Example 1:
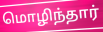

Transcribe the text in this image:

மொழிந்தார்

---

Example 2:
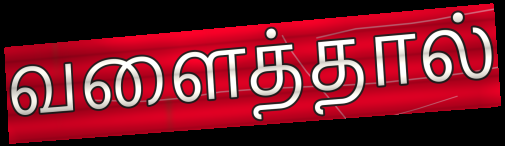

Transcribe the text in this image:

வளைத்தால்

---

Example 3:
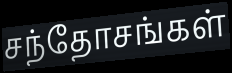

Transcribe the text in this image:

சந்தோசங்கள்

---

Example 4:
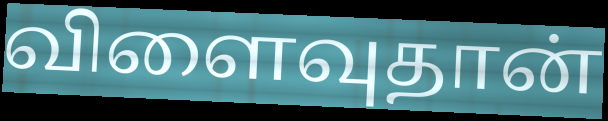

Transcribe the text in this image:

விளைவுதான்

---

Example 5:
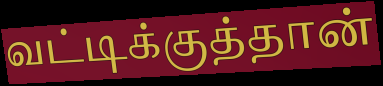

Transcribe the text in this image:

வட்டிக்குத்தான்